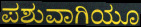
ಪಶುವಾಗಿಯೂ